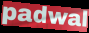
padwal